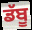
ਡੱਬੂ